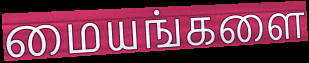
மையங்களை